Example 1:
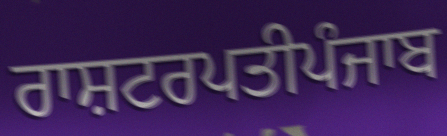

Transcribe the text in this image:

ਰਾਸ਼ਟਰਪਤੀਪੰਜਾਬ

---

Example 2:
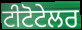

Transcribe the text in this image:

ਟੀਟੋਟੇਲਰ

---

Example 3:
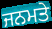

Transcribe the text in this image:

ਜਨਮਤੇ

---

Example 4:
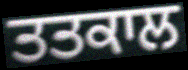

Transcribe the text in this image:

ਤਤਕਾਲ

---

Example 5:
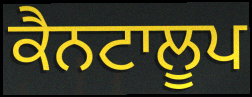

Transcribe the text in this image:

ਕੈਨਟਾਲੂਪ